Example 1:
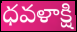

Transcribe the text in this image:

ధవళాక్షి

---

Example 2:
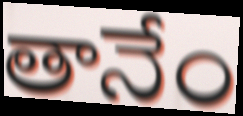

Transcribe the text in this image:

తానేం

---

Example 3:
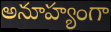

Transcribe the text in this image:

అనూహ్యంగా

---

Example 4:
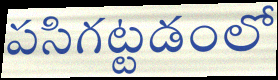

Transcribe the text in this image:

పసిగట్టడంలో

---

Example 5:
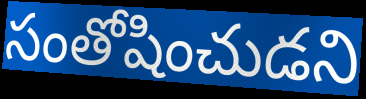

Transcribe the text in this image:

సంతోషించుడని